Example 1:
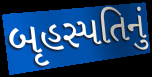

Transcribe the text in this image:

બૃહસ્પતિનું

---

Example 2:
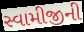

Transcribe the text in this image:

સ્વામીજીની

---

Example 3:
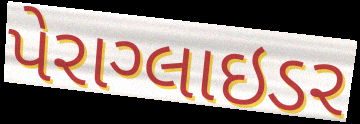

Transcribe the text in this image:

પેરાગ્લાઇડર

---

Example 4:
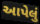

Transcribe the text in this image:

આપેલું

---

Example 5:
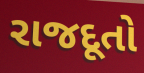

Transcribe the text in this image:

રાજદૂતો